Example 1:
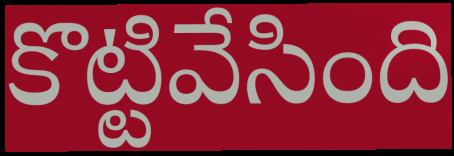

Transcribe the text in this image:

కొట్టివేసింది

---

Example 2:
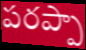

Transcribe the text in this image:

పరప్పా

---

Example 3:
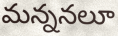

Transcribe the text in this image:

మన్ననలూ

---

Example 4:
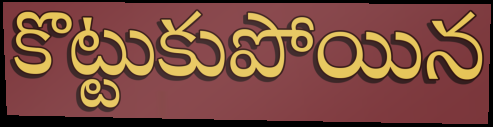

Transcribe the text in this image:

కొట్టుకుపోయిన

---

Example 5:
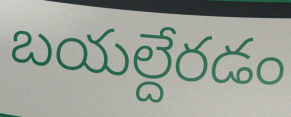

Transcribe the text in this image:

బయల్దేరడం